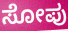
ಸೋಪು